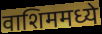
वाशिममध्ये